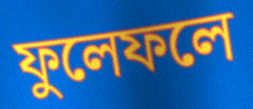
ফুলেফলে